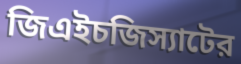
জিএইচজিস্যাটের